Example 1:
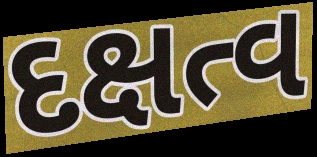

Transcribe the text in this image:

દક્ષત્વ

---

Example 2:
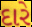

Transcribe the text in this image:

દારે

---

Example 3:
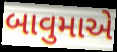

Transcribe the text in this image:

બાવુમાએ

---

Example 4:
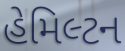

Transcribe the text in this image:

હેમિલ્ટન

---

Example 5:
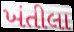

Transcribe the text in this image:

ખંતીલા